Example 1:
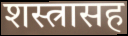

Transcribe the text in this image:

शस्त्रासह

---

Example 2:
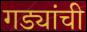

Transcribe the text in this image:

गड्यांची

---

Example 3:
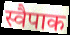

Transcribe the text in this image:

स्वैपाक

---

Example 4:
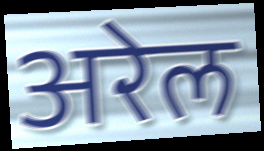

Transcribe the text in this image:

अरेल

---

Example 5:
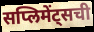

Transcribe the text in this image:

सप्लिमेंट्सची